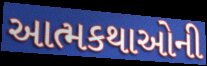
આત્મકથાઓની